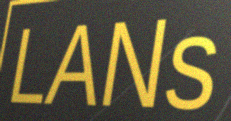
LANs